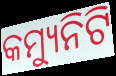
କମ୍ୟୁନିଟି